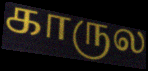
காருல